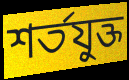
শর্তযুক্ত